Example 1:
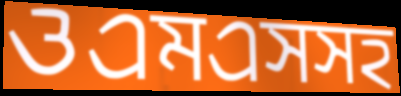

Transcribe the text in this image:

ওএমএসসহ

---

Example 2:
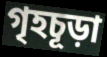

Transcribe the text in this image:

গৃহচূড়া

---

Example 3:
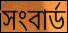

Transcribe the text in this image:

সংবার্ড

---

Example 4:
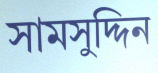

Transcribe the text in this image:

সামসুদ্দিন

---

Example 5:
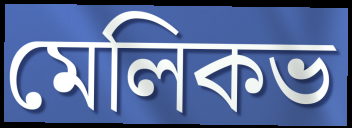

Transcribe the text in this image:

মেলিকভ